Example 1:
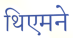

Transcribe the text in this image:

थिएमने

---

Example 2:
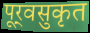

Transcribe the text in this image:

पूर्वसुकृत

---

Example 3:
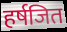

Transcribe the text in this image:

हर्षजित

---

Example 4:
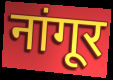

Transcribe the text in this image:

नांगूर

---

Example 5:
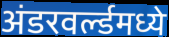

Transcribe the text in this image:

अंडरवर्ल्डमध्ये